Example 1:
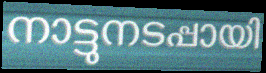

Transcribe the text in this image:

നാട്ടുനടപ്പായി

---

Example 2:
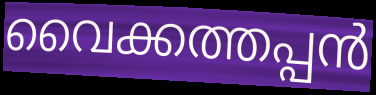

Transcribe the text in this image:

വൈക്കത്തപ്പൻ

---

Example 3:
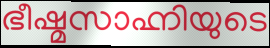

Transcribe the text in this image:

ഭീഷ്മസാഹ്നിയുടെ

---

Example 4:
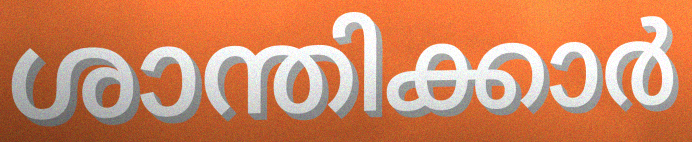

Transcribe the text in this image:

ശാന്തിക്കാർ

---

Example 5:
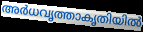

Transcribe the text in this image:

അർധവൃത്താകൃതിയിൽ